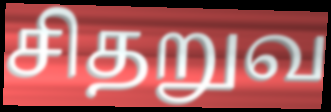
சிதறுவ